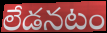
లేడనటం